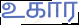
உகார